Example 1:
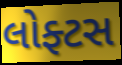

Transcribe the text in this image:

લોફ્ટસ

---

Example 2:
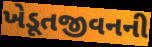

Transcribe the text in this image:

ખેડૂતજીવનની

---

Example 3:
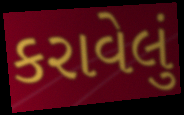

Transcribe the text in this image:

કરાવેલું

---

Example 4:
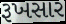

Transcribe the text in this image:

રૂખસાર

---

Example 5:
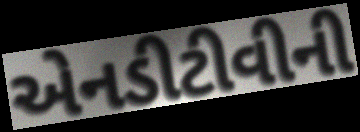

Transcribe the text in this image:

એનડીટીવીની